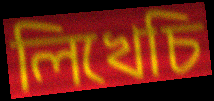
লিখেচি